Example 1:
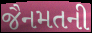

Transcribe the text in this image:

જૈનમતની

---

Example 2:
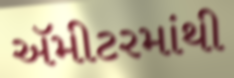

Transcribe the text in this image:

ઍમીટરમાંથી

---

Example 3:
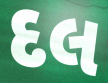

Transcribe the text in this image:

દલ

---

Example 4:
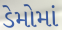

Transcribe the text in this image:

ડેમોમાં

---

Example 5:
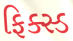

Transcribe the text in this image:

ફિક્સ્ડ